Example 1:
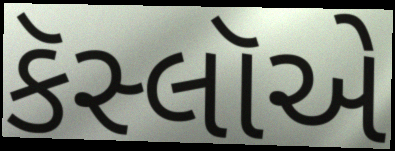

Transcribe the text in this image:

કૅસ્લૉએ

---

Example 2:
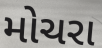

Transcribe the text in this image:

મોચરા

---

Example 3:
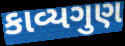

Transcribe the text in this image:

કાવ્યગુણ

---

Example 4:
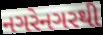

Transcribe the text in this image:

નગરેનગરથી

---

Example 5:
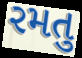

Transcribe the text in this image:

રમતુ